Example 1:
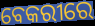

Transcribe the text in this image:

ବେକରୀରେ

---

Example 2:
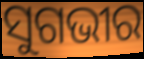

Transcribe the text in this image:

ସୁଗଭୀର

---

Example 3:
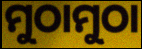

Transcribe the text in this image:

ମୁଠାମୁଠା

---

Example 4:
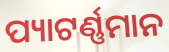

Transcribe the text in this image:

ପ୍ୟାଟର୍ଣ୍ଣମାନ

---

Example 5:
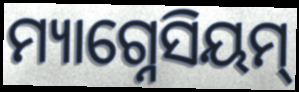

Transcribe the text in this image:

ମ୍ୟାଗ୍ନେସିୟମ୍